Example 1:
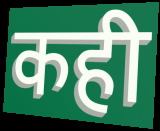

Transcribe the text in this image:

कही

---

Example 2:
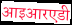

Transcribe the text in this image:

आइआरएडी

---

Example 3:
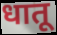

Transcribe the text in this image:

धातू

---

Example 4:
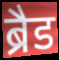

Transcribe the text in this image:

ब्रैड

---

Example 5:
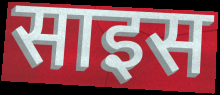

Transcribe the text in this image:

साइस